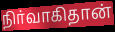
நிர்வாகிதான்